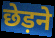
छेड़ने